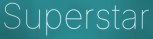
Superstar